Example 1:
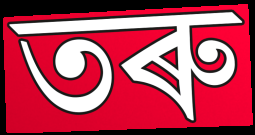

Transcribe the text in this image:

তৰু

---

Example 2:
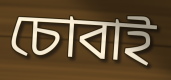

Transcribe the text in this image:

চোবাই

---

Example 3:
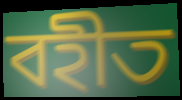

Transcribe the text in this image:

বহীত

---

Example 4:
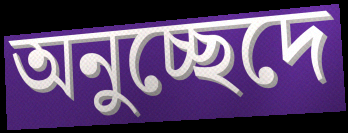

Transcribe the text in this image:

অনুচ্ছেদে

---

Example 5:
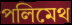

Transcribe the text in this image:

পলিমেথ